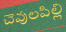
చెవులపిల్లి